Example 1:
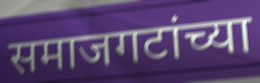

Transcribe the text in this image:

समाजगटांच्या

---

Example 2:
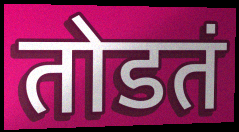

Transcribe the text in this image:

तोडतं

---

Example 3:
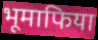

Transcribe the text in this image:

भूमाफिया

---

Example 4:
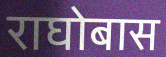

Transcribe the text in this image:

राघोबास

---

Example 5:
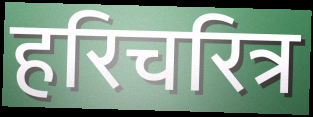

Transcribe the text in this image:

हरिचरित्र